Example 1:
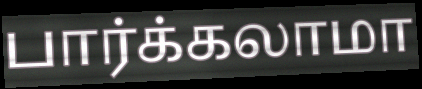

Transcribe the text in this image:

பார்க்கலாமா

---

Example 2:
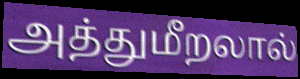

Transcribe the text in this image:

அத்துமீறலால்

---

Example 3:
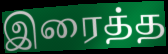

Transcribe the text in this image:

இரைத்த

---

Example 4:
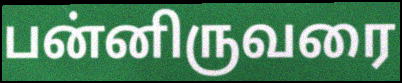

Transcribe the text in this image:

பன்னிருவரை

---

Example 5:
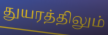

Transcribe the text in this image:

துயரத்திலும்